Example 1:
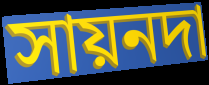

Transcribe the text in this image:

সায়নদা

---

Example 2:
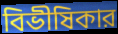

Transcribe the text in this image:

বিভীষিকার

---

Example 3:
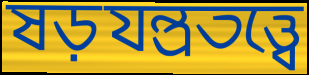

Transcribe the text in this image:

ষড়যন্ত্রতত্ত্বে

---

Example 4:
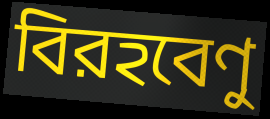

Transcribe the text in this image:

বিরহবেণু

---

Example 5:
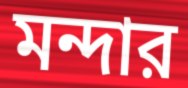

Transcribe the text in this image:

মন্দার